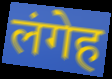
लंगेह